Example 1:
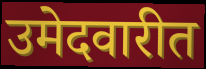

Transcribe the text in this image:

उमेदवारीत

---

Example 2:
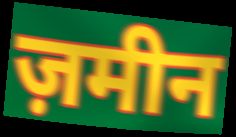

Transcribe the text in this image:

ज़मीन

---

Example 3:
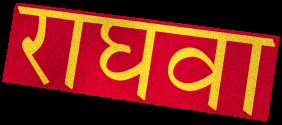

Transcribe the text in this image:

राघवा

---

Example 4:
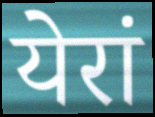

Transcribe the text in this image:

येरां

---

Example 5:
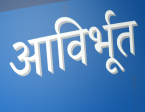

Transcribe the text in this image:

आविर्भूत